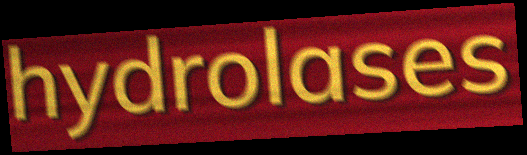
hydrolases